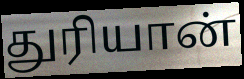
துரியான்